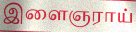
இளைஞராய்